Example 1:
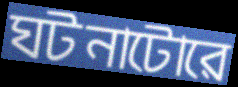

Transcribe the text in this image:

ঘটনাটোৱে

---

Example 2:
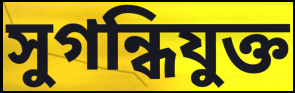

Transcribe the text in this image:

সুগন্ধিযুক্ত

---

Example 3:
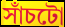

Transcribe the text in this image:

সাঁচটো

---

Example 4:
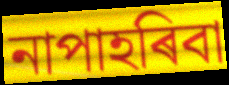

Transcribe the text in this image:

নাপাহৰিবা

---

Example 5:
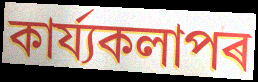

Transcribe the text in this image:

কাৰ্য্যকলাপৰ